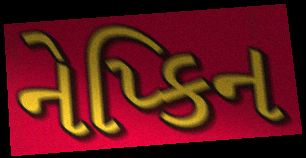
નેપ્કિન